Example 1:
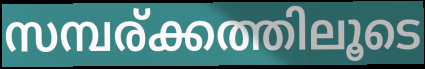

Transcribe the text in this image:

സമ്പര്ക്കത്തിലൂടെ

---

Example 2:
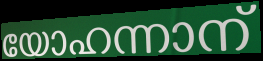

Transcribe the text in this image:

യോഹന്നാന്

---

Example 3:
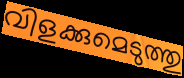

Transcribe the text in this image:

വിളക്കുമെടുത്തു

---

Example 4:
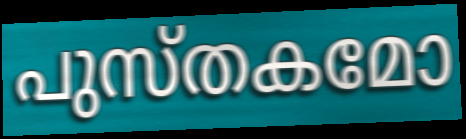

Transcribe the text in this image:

പുസ്തകമോ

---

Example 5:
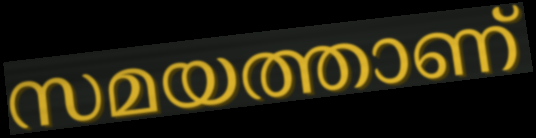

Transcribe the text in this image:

സമയത്താണ്